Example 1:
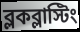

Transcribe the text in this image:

ব্লকব্লাস্টিং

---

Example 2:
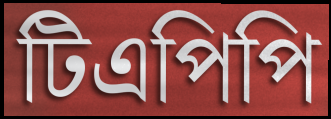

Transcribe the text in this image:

টিএপিপি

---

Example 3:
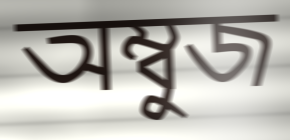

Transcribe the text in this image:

অম্বুজ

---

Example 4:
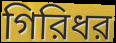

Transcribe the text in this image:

গিরিধর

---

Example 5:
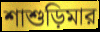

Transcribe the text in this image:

শাশুড়িমার